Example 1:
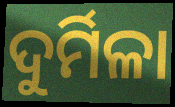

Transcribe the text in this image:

ଦୁର୍ମିଳା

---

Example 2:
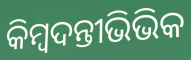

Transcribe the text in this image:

କିମ୍ବଦନ୍ତୀଭିଭିକ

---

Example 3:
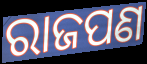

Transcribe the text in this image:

ରାଜପଣ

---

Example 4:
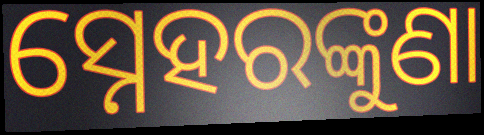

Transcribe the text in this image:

ସ୍ନେହରଙ୍କୁଣା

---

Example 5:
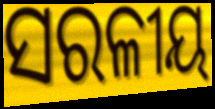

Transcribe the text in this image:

ସରଳୀୟ